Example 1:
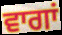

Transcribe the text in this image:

ਵਾਗਾਂ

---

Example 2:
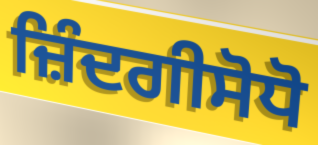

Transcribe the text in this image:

ਜ਼ਿੰਦਗੀਸੋਧੋ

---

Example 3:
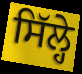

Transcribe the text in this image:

ਸਿੱਲ੍ਹੇ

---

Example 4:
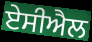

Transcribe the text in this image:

ਏਸੀਐਲ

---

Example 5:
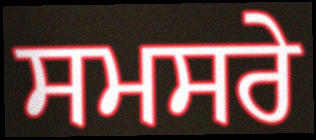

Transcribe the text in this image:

ਸਮਸਰੇ